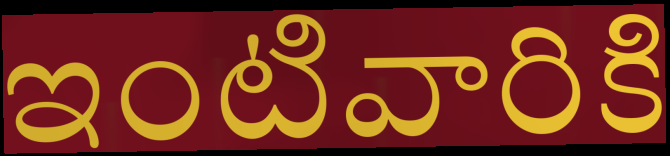
ఇంటివారికి